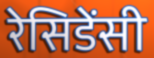
रेसिडेंसी